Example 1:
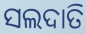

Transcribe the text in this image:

ସଲଦାତି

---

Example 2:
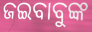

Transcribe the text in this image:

ଜଇବାବୁଙ୍କ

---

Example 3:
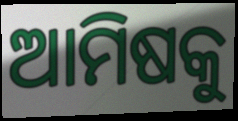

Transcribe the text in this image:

ଆମିଷକୁ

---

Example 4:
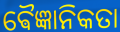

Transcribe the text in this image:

ଵୈଜ୍ଞାନିକତା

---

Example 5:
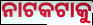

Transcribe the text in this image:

ନାଟକଟାକୁ